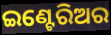
ଇଣ୍ଟେରିଅର